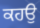
ਕਹਉ